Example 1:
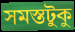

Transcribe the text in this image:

সমস্তটুকু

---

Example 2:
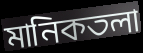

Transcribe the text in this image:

মানিকতলা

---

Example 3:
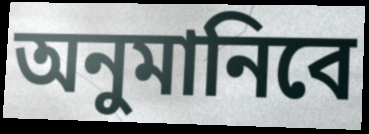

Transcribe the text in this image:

অনুমানিবে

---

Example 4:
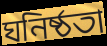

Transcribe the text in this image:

ঘনিষ্ঠতা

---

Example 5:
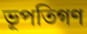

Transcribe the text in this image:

ভূপতিগণ